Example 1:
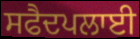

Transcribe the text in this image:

ਸਫੈਦਪਲਾਈ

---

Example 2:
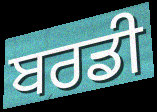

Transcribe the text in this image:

ਬਰਡੀ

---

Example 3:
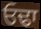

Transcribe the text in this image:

ਓਢਾ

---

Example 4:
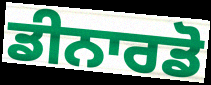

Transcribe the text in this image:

ਡੀਨਾਰਡੋ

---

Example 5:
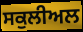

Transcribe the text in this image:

ਸਕੁਲੀਅਲ